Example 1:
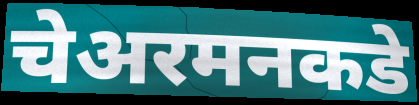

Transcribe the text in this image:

चेअरमनकडे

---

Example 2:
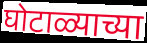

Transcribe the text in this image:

घोटाळ्याच्या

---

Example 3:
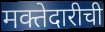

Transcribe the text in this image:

मक्तेदारीची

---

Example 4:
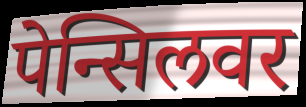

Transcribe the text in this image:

पेन्सिलवर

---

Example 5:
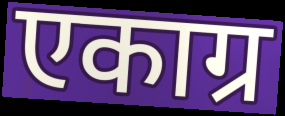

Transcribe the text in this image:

एकाग्र